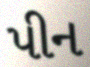
પીન